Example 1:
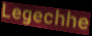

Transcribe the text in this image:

Legechhe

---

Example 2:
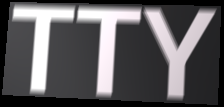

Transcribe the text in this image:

TTY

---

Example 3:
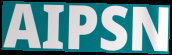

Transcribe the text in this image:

AIPSN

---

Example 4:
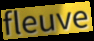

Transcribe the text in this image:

fleuve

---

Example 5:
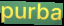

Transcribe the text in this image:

purba